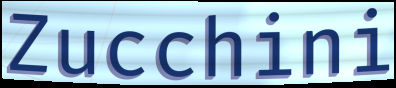
Zucchini